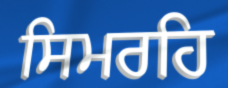
ਸਿਮਰਹਿ